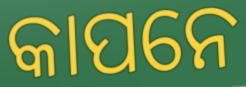
କାପନେ